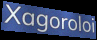
Xagoroloi